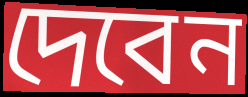
দেবেন